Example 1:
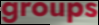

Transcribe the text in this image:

groups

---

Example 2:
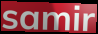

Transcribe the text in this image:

samir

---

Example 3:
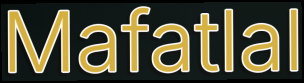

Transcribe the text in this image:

Mafatlal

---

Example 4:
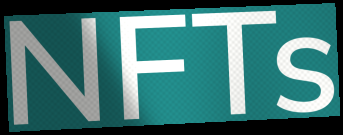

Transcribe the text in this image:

NFTs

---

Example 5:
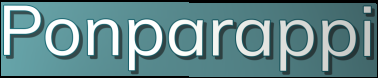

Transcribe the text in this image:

Ponparappi